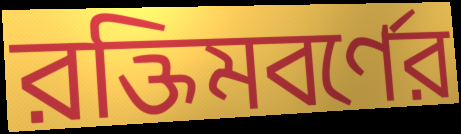
রক্তিমবর্ণের